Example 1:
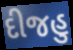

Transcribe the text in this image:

દીજહુ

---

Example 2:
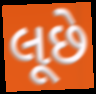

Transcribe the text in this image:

લૂછે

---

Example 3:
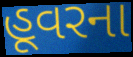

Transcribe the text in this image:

હૂવરના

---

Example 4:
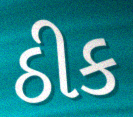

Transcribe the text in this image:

ઠીક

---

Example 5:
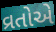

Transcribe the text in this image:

વ્રતોએ